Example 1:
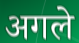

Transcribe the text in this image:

अगले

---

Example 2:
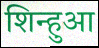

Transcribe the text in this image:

शिन्हुआ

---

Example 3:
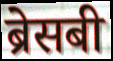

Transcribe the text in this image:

ब्रेसबी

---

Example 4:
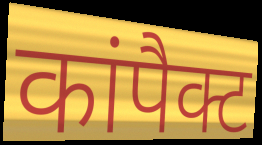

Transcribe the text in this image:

कांपैक्ट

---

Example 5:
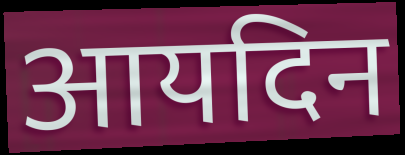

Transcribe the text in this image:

आयदिन